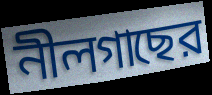
নীলগাছের